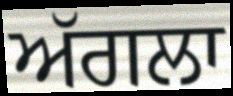
ਅੱਗਲਾ